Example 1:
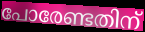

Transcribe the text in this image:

പോരേണ്ടതിന്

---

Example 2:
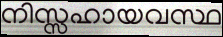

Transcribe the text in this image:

നിസ്സഹായവസ്ഥ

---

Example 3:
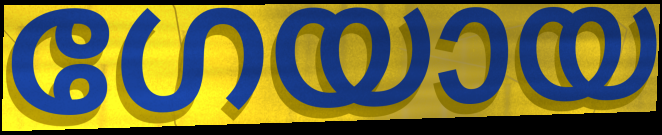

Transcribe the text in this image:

ഗേയായ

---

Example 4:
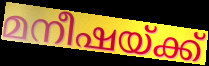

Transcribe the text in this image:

മനീഷയ്ക്ക്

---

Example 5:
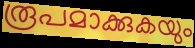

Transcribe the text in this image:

രൂപമാക്കുകയും